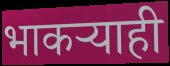
भाकऱ्याही